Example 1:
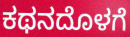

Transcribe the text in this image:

ಕಥನದೊಳಗೆ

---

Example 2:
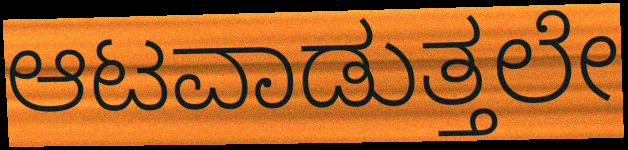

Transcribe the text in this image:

ಆಟವಾಡುತ್ತಲೇ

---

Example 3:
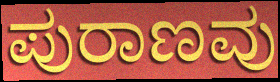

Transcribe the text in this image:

ಪುರಾಣವು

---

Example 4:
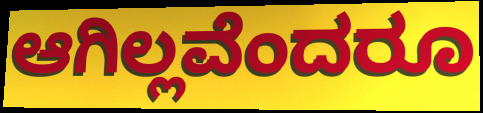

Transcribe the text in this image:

ಆಗಿಲ್ಲವೆಂದರೂ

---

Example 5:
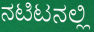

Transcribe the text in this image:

ನಟಿಟನಲ್ಲಿ